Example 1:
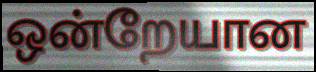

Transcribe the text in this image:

ஒன்றேயான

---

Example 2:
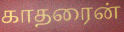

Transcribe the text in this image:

காதரைன்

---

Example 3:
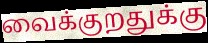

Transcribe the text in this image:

வைக்குறதுக்கு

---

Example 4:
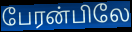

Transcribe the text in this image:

பேரன்பிலே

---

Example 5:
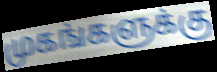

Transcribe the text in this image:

முகங்களுக்கு